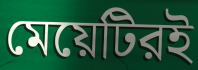
মেয়েটিরই